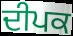
ਦੀਪਕ